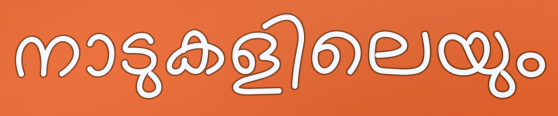
നാടുകളിലെയും